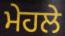
ਮੇਹਲੇ